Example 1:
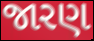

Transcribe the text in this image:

જારણ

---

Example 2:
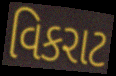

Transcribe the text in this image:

વિકરાટ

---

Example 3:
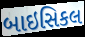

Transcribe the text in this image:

બાઇસિકલ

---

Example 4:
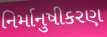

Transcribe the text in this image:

નિર્માનુષીકરણ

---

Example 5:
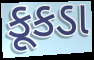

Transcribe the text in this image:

કૂકડા